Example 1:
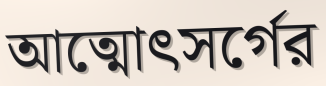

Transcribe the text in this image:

আত্মোৎসর্গের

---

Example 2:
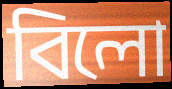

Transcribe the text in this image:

বিলো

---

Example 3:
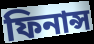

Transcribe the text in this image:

ফিনান্স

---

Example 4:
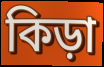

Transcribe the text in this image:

কিড়া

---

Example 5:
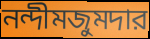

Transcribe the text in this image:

নন্দীমজুমদার